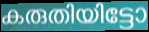
കരുതിയിട്ടോ